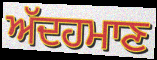
ਅੱਦਹਮਾਣ